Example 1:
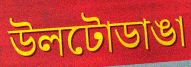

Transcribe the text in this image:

উলটোডাঙা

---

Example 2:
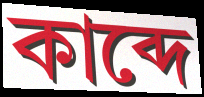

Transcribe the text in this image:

কাব্দে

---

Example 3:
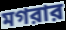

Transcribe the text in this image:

মগরার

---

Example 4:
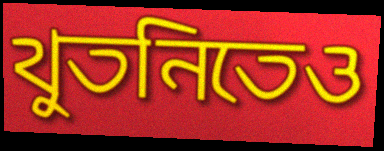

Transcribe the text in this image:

থুতনিতেও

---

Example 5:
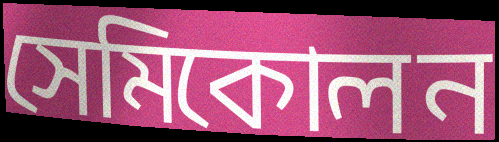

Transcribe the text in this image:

সেমিকোলন